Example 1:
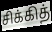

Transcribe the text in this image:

சிக்கித்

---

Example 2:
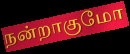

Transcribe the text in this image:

நன்றாகுமோ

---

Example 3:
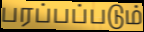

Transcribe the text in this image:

பரப்பப்படும்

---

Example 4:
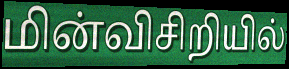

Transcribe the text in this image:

மின்விசிறியில்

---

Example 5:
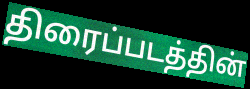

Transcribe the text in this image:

திரைப்படத்தின்